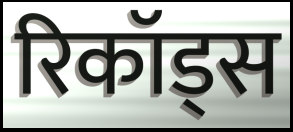
रिकॉड्स